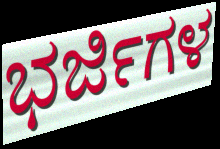
ಭರ್ಜಿಗಳ